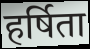
हर्षिता